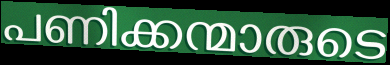
പണിക്കന്മാരുടെ